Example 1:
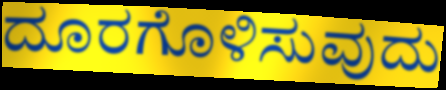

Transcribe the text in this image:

ದೂರಗೊಳಿಸುವುದು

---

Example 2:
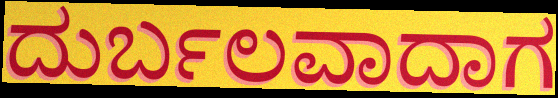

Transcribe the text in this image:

ದುರ್ಬಲವಾದಾಗ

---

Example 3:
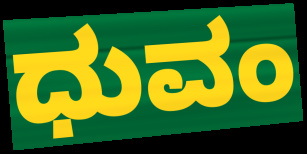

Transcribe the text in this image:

ಧುವಂ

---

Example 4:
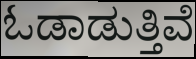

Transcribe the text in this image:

ಓಡಾಡುತ್ತಿವೆ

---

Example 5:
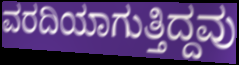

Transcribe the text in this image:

ವರದಿಯಾಗುತ್ತಿದ್ದವು